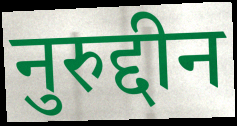
नुरुद्दीन